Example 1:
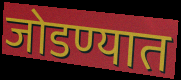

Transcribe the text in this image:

जोडण्यात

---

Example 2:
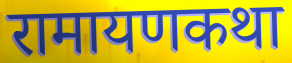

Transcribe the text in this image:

रामायणकथा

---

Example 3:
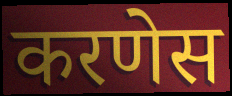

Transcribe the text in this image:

करणेस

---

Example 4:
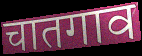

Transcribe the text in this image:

चातगाव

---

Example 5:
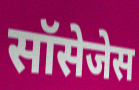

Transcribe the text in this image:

सॉसेजेस